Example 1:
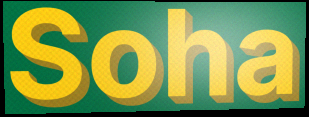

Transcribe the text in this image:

Soha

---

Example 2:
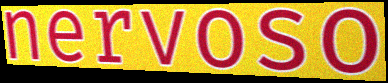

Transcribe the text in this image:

nervoso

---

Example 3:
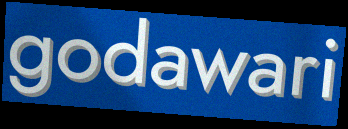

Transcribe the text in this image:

godawari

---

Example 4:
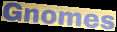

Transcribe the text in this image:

Gnomes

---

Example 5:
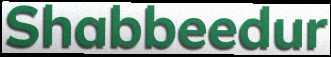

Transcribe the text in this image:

Shabbeedur